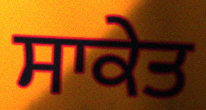
ਸਾਕੇਤ